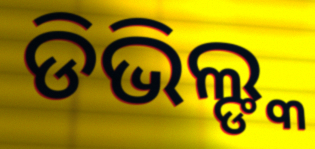
ଡିଭିଲ୍ଙ୍କ